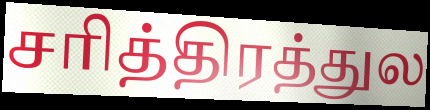
சரித்திரத்துல